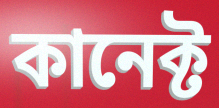
কানেক্ট